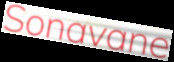
Sonavane